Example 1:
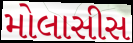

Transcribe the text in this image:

મોલાસીસ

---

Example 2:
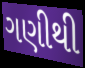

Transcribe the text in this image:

ગણીથી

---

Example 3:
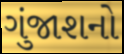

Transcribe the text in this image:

ગુંજાશનો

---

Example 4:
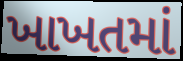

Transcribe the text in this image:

ખાખતમાં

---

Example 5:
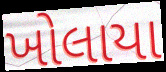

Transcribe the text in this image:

ખોલાયા